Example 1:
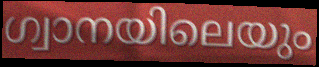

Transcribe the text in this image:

ഗ്വാനയിലെയും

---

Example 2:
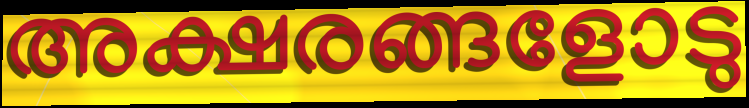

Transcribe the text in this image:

അക്ഷരങ്ങളോടു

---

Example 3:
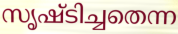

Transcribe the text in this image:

സൃഷ്ടിച്ചതെന്ന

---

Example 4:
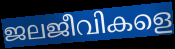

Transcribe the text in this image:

ജലജീവികളെ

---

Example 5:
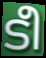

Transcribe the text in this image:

ടീ